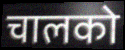
चालको